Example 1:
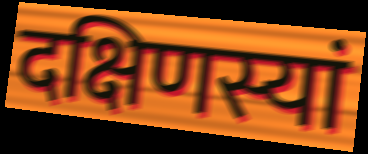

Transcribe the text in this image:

दक्षिणस्यां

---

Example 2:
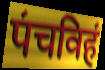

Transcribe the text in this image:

पंचविहं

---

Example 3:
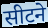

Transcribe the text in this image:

सीटने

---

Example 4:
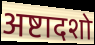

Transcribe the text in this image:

अष्टादशो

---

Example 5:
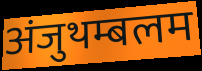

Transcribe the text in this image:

अंजुथम्बलम